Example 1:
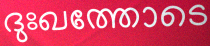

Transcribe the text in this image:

ദുഃഖത്തോടെ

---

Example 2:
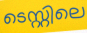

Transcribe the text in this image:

ടെസ്റ്റിലെ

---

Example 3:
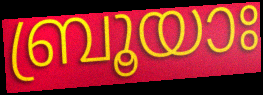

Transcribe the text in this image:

ബ്രൂയാഃ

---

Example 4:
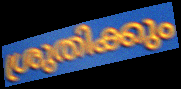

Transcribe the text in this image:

ശ്രുതിക്കും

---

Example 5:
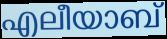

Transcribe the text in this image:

എലീയാബ്